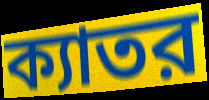
ক্যাতর